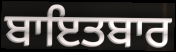
ਬਾਇਤਬਾਰ